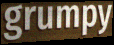
grumpy